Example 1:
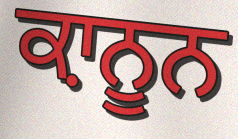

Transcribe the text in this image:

ਕ਼ਾਨੂਨ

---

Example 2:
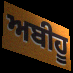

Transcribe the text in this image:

ਅਬੀਹੂ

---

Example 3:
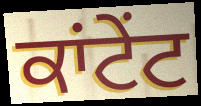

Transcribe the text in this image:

ਕਾਂਟੇਂਟ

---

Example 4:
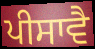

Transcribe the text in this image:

ਪੀਸਾਵੈ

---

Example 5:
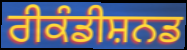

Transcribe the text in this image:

ਰੀਕੰਡੀਸ਼ਨਡ